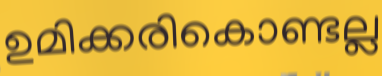
ഉമിക്കരികൊണ്ടല്ല